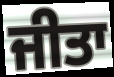
ਜੀਤਾ